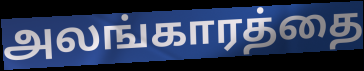
அலங்காரத்தை